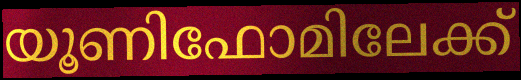
യൂണിഫോമിലേക്ക്